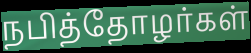
நபித்தோழர்கள்